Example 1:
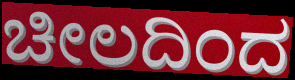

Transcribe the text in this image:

ಚೀಲದಿಂದ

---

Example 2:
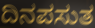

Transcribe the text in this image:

ದಿನಪಸುತ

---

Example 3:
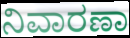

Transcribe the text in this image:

ನಿವಾರಣಾ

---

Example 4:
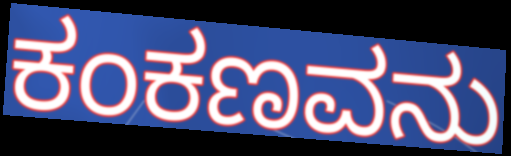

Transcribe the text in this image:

ಕಂಕಣವನು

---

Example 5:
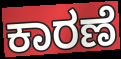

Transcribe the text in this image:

ಕಾರಣೆ